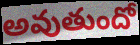
అవుతుందో